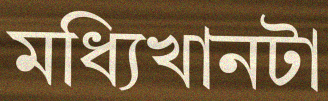
মধ্যিখানটা